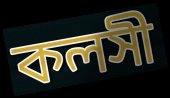
কলসী